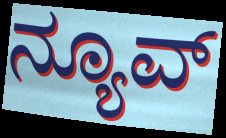
ನ್ಯೂವ್